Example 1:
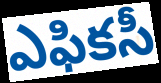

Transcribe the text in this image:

ఎఫికసీ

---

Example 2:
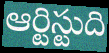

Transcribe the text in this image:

ఆర్టిస్టుది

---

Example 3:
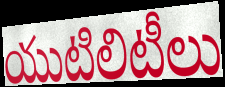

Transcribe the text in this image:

యుటిలిటీలు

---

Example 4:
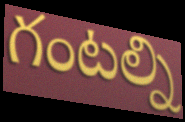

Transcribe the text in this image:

గంటల్ని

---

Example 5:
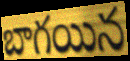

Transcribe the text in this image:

బాగయిన